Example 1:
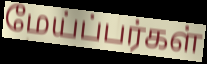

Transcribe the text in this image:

மேய்ப்பர்கள்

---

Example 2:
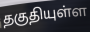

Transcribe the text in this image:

தகுதியுள்ள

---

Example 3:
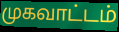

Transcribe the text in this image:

முகவாட்டம்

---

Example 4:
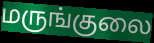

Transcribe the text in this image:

மருங்குலை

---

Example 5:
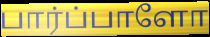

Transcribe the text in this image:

பார்ப்பாளோ